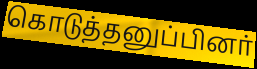
கொடுத்தனுப்பினர்